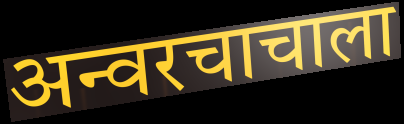
अन्वरचाचाला